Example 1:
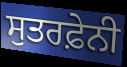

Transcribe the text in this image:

ਸੁਤਰਫ਼ੇਨੀ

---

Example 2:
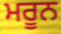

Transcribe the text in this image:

ਮਰੂਨ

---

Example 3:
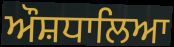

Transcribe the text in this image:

ਔਸ਼ਧਾਲਿਆ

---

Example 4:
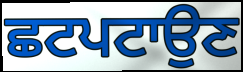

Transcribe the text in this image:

ਛਟਪਟਾਉਣ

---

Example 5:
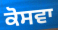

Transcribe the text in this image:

ਕੋਸਵਾ